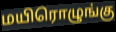
மயிரொழுங்கு